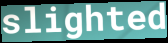
slighted